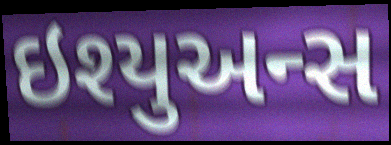
ઇશ્યુઅન્સ